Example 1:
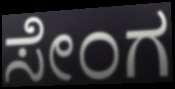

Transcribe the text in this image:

ಸೇಂಗ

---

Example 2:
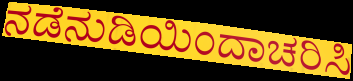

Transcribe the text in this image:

ನಡೆನುಡಿಯಿಂದಾಚರಿಸಿ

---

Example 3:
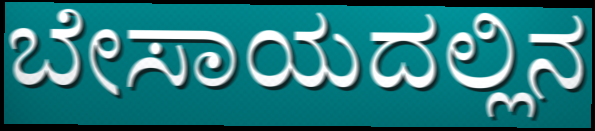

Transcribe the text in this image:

ಬೇಸಾಯದಲ್ಲಿನ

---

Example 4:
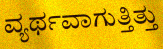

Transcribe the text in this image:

ವ್ಯರ್ಥವಾಗುತ್ತಿತ್ತು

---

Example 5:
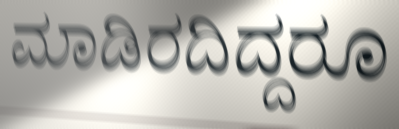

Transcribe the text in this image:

ಮಾಡಿರದಿದ್ದರೂ